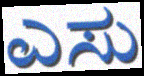
ಎಸು